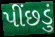
પીંછડું